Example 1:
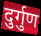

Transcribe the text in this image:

दुर्गुण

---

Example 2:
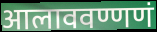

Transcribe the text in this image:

आलाववण्णणं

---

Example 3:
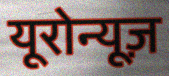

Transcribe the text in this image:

यूरोन्यूज़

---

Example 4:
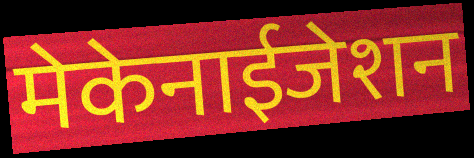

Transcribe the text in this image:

मेकेनाईजेशन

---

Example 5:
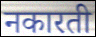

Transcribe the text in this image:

नकारती